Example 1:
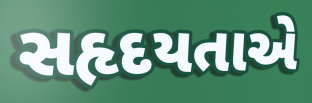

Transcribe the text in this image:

સહૃદયતાએ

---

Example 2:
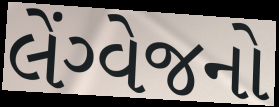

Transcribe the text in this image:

લેંગ્વેજનો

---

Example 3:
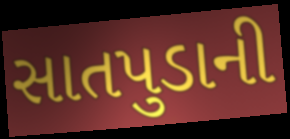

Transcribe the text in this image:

સાતપુડાની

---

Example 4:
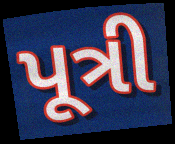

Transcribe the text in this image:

પૂત્રી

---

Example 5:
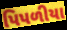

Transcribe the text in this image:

પિપળીયા